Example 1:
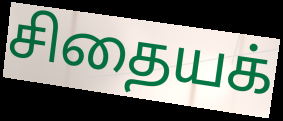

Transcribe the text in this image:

சிதையக்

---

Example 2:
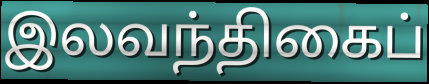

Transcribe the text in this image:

இலவந்திகைப்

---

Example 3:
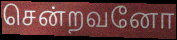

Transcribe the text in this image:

சென்றவனோ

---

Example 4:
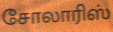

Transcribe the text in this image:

சோலாரிஸ்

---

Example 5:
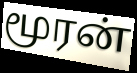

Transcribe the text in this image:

மூரன்